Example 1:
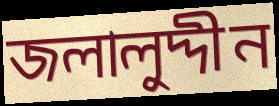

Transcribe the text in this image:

জলালুদ্দীন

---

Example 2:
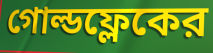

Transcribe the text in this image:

গোল্ডফ্লেকের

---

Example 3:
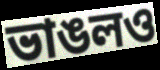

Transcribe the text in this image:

ভাঙলও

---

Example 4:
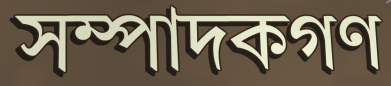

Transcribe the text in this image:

সম্পাদকগণ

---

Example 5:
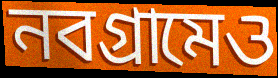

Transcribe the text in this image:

নবগ্রামেও